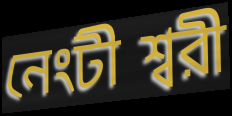
নেংটীশ্বরী